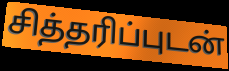
சித்தரிப்புடன்